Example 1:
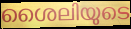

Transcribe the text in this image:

ശൈലിയുടെ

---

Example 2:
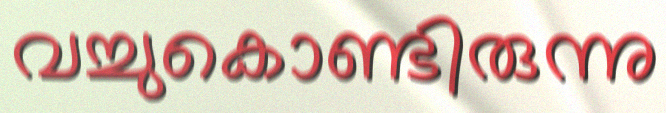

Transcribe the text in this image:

വച്ചുകൊണ്ടിരുന്നു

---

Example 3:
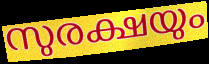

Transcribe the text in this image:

സുരക്ഷയും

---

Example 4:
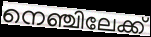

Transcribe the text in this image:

നെഞ്ചിലേക്ക്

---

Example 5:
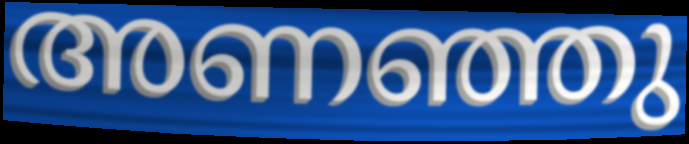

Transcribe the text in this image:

അണഞ്ഞു